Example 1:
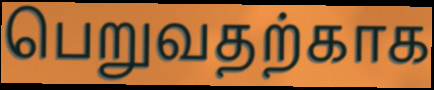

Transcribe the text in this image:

பெறுவதற்காக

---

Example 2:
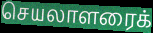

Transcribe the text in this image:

செயலாளரைக்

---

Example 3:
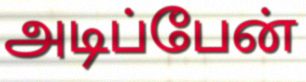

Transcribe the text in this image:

அடிப்பேன்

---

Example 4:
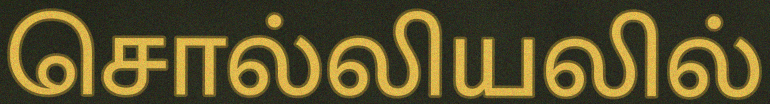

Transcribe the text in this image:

சொல்லியலில்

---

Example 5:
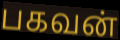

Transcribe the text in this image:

பகவன்